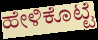
ಹೇಳಿಕೊಟ್ಟೆ